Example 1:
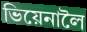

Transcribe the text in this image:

ভিয়েনালৈ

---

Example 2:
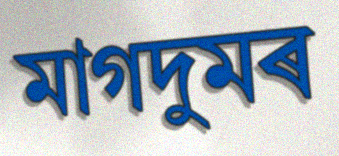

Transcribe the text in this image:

মাগদুমৰ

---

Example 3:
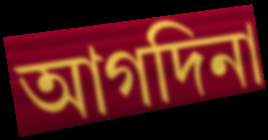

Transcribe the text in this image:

আগদিনা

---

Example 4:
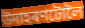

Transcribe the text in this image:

উদাহৰণটোলৈ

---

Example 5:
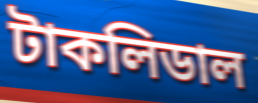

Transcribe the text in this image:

টাকলিডাল